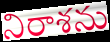
నిరాశను